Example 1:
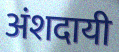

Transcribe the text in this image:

अंशदायी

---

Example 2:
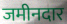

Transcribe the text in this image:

जमीनदार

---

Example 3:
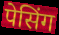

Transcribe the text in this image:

पेसिंग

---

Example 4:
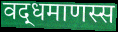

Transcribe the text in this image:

वद्धमाणस्स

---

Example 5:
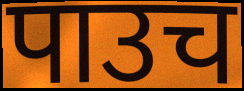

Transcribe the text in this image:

पाउच